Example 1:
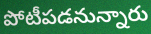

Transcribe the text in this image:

పోటీపడనున్నారు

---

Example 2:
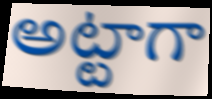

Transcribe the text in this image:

అట్టాగా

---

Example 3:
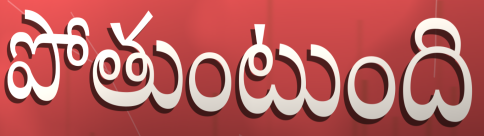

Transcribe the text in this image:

పోతుంటుంది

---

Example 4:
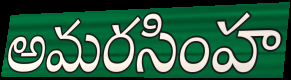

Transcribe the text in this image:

అమరసింహ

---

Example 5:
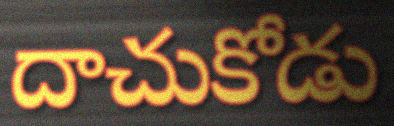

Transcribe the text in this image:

దాచుకోడు